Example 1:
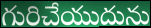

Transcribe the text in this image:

గురిచేయుదును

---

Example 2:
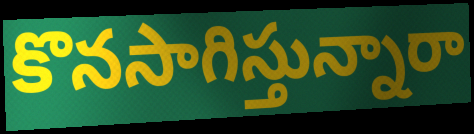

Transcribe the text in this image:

కొనసాగిస్తున్నారా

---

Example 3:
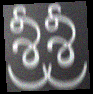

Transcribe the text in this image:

శ్రీశ్రీ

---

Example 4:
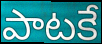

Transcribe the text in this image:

పాటకే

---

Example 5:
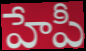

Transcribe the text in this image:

హేపీ